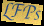
LFPs